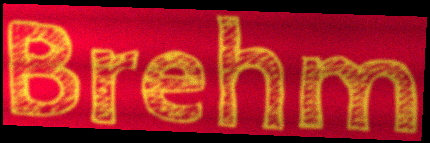
Brehm